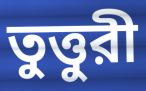
তুত্তুরী